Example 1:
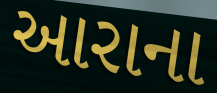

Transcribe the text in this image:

આરાના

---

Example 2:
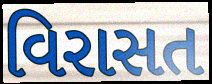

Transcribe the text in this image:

વિરાસત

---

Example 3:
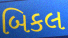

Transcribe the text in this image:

બિકલ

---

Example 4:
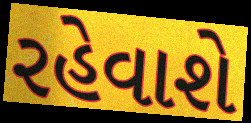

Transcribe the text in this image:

રહેવાશે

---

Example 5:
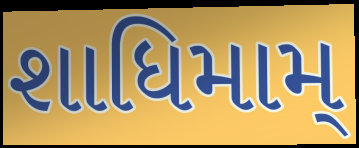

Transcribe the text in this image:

શાધિમામ્